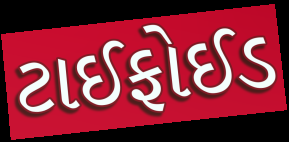
ટાઈફોઈડ